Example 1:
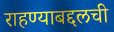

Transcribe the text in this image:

राहण्याबद्दलची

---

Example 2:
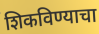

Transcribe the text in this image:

शिकविण्याचा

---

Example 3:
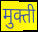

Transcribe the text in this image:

मुक्ती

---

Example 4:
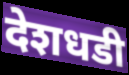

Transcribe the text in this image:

देशधडी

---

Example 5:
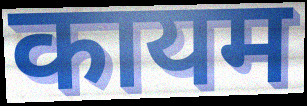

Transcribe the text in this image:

कायम